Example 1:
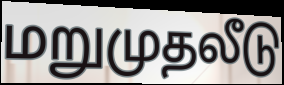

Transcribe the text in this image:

மறுமுதலீடு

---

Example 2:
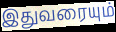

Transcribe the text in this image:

இதுவரையும்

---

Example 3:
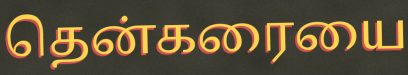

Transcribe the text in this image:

தென்கரையை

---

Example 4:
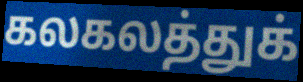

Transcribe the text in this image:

கலகலத்துக்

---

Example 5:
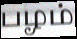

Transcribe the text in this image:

பழம்